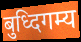
बुध्दिगम्य